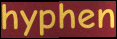
hyphen